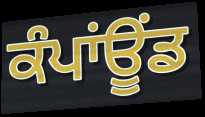
ਕੰਪਾਂਊਂਡ